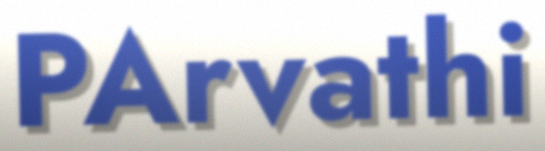
PArvathi